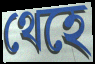
থেহে